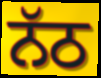
ਨੱਠ